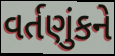
વર્તણુંકને